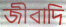
জীবাদি